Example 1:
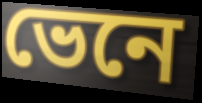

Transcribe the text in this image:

ভেনে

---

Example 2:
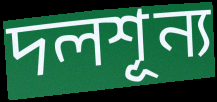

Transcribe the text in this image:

দলশূন্য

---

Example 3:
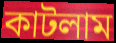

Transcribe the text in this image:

কাটলাম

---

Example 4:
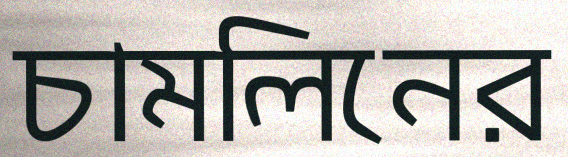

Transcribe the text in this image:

চামলিনের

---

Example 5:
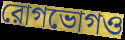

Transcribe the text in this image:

রোগভোগও